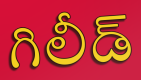
గిలీడ్